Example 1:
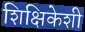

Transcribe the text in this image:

शिक्षिकेशी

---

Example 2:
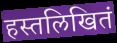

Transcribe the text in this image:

हस्तलिखितं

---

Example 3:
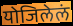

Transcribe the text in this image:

योजिलेलं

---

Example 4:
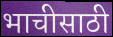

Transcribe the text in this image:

भाचीसाठी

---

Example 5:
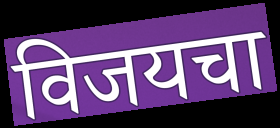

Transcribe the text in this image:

विजयचा